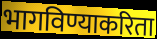
भागविण्याकरिता